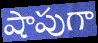
షాపుగా